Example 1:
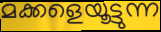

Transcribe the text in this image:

മക്കളെയൂട്ടുന്ന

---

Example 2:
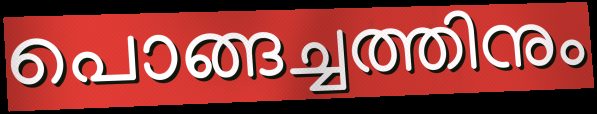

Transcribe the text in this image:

പൊങ്ങച്ചത്തിനും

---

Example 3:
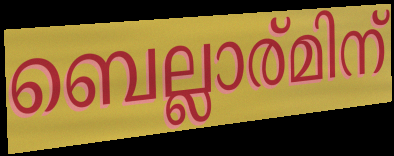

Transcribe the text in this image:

ബെല്ലാര്മിന്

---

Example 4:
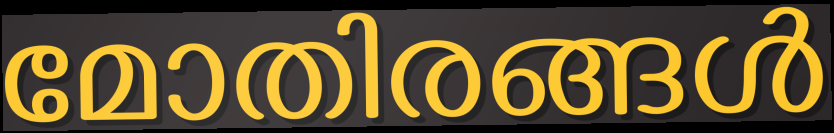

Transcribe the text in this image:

മോതിരങ്ങൾ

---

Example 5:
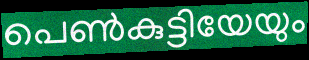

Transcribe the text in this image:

പെൺകുട്ടിയേയും